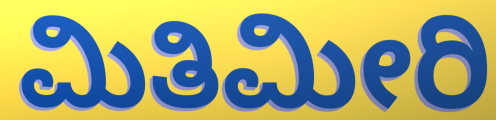
ಮಿತಿಮೀರಿ